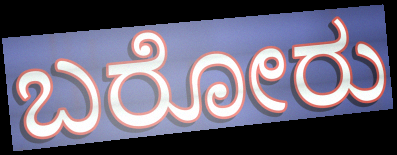
ಬರೋರು